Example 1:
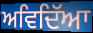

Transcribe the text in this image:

ਅਵਿਦਿੱਆ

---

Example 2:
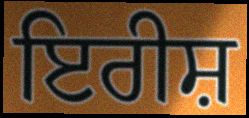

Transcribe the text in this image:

ਇਰੀਸ਼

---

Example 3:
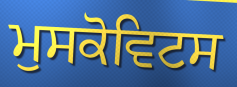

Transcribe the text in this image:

ਮੁਸਕੋਵਿਟਸ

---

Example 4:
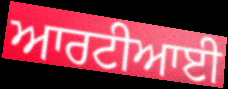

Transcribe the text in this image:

ਆਰਟੀਆਈ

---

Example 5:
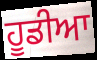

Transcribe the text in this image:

ਹੂਡੀਆ